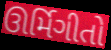
ઊર્મિગીતો